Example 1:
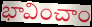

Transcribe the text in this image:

భావించాం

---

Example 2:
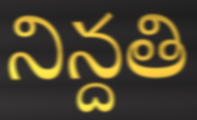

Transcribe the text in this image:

నిన్దతి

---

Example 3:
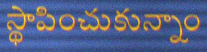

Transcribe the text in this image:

స్థాపించుకున్నాం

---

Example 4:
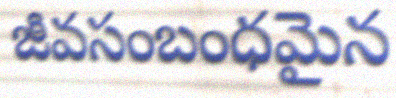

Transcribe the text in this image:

జీవసంబంధమైన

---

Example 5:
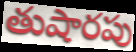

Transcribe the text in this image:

తుషారపు